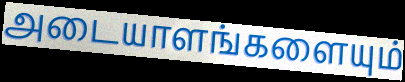
அடையாளங்களையும்